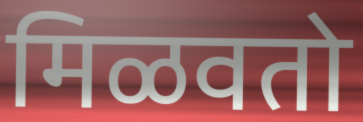
मिळवतो